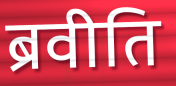
ब्रवीति